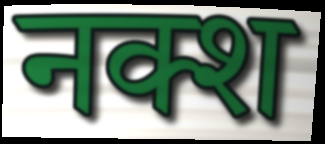
नक्श